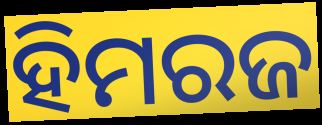
ହିମରଜ